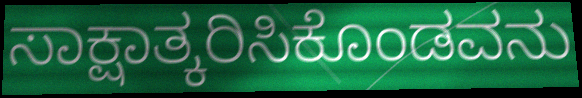
ಸಾಕ್ಷಾತ್ಕರಿಸಿಕೊಂಡವನು